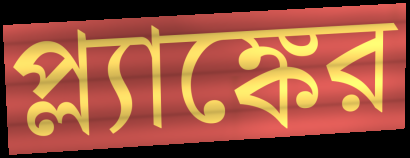
প্ল্যাঙ্কের